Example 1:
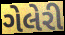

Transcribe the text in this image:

ગેલેરી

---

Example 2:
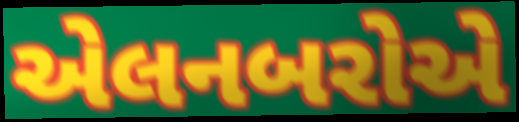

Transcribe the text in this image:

એલનબરોએ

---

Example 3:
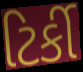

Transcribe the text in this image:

ટિર્કી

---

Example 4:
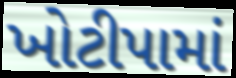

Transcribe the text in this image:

ખોટીપામાં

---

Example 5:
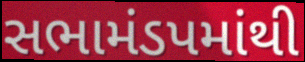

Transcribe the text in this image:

સભામંડપમાંથી